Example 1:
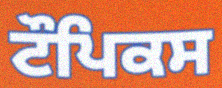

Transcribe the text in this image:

ਟੌਪਿਕਸ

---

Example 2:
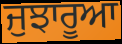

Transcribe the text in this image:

ਜੁਝਾਰੂਆ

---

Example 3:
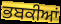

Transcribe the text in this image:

ਭਬਕੀਆਂ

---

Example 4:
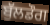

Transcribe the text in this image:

ਬੁੱਲਡੌਗ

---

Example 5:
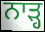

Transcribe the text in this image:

ਨਾੜ੍ਹ